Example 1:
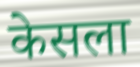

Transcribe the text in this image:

केसला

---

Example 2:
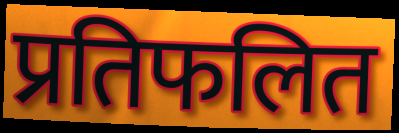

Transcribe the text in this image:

प्रतिफलित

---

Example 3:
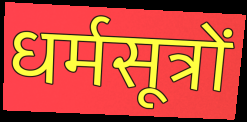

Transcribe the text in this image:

धर्मसूत्रों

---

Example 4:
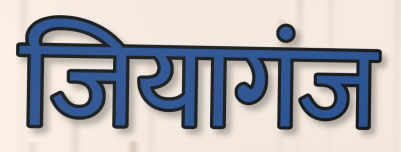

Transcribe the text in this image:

जियागंज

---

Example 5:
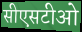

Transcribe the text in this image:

सीएसटीओ